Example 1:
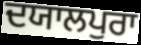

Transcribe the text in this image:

ਦਯਾਲਪੁਰਾ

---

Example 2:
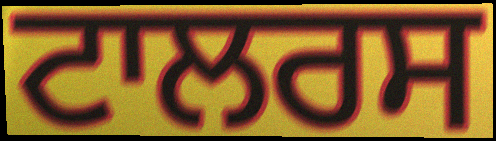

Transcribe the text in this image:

ਟਾਲਰਸ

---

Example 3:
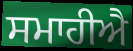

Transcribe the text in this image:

ਸਮਾਹੀਐ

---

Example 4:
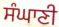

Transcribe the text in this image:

ਸੰਘਾਣੀ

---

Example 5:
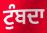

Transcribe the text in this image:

ਟੁੰਬਦਾ